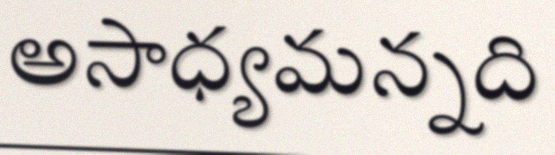
అసాధ్యమన్నది